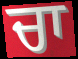
ਚਾ